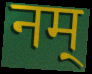
नम्